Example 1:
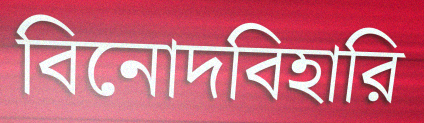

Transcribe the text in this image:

বিনোদবিহারি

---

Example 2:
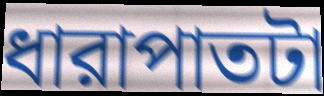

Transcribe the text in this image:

ধারাপাতটা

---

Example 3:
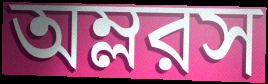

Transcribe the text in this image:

অম্লরস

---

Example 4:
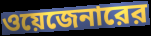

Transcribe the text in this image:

ওয়েজেনারের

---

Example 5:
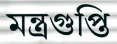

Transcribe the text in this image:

মন্ত্রগুপ্তি